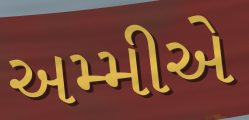
અમ્મીએ